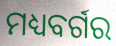
ମଧ୍ୟବର୍ଗର